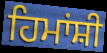
ਹਿਮਾਂਸ਼ੀ